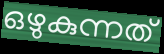
ഒഴുകുന്നത്